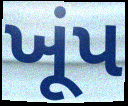
ખૂંપ